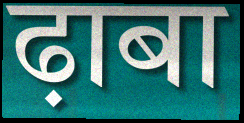
ढ़ाबा